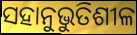
ସହାନୁଭୁତିଶୀଳ